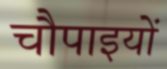
चौपाइयों